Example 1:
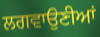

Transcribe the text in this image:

ਲਗਵਾਉਣੀਆਂ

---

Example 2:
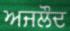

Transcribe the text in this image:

ਅਜਲੌਦ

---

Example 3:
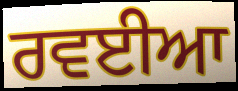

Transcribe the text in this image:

ਰਵਈਆ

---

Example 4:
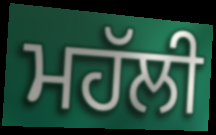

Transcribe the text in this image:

ਮਹੱਲੀ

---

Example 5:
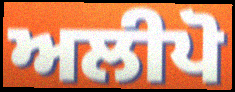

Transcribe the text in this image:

ਅਲੀਪੋ